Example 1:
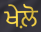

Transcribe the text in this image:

ਖੇਲ਼ੋ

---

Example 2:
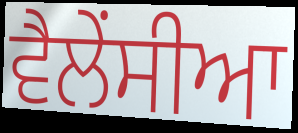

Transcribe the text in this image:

ਵੈਲੇਂਸੀਆ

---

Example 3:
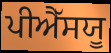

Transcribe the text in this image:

ਪੀਐੱਸਯੂ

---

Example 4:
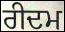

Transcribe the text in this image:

ਰੀਦਮ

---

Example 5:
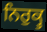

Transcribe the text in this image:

ਨਿਰੁਕ੍ਤ